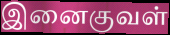
இனைகுவள்